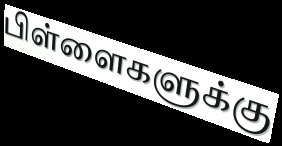
பிள்ளைகளுக்கு